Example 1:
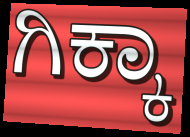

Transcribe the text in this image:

ಗಿಕ್ಕಾ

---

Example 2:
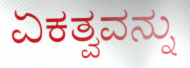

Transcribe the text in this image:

ಏಕತ್ವವನ್ನು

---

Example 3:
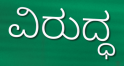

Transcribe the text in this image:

ವಿರುದ್ಧ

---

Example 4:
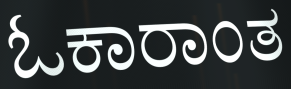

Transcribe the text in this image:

ಓಕಾರಾಂತ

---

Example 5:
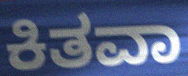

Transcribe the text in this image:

ಕಿತವಾ